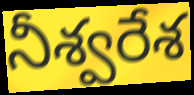
నీశ్వరేశ